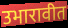
उभारावीत